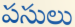
పసులు